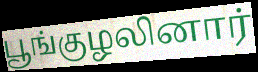
பூங்குழலினார்